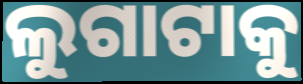
ଲୁଗାଟାକୁ